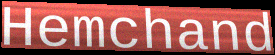
Hemchand